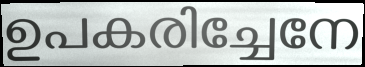
ഉപകരിച്ചേനേ